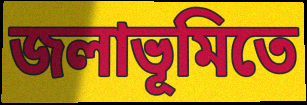
জলাভূমিতে